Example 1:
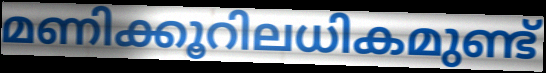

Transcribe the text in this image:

മണിക്കൂറിലധികമുണ്ട്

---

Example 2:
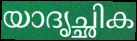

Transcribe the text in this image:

യാദൃച്ഛിക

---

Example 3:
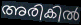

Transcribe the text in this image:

അരികിൽ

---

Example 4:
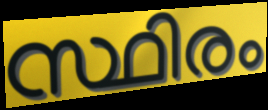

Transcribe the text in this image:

സ്ഥിരം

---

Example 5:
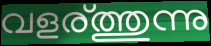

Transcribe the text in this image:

വളര്ത്തുന്നു